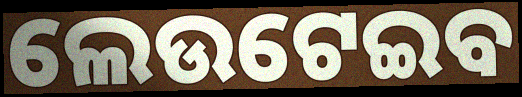
ଲେଉଟେଇବ